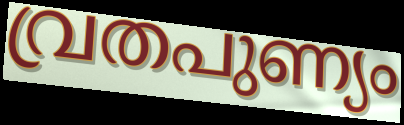
വ്രതപുണ്യം